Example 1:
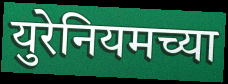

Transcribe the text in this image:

युरेनियमच्या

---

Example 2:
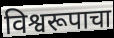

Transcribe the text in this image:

विश्वरूपाचा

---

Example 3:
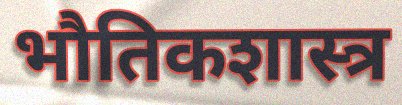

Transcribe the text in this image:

भौतिकशास्त्र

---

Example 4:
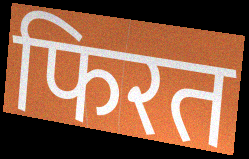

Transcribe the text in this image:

फिरत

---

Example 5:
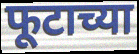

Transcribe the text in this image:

फूटाच्या